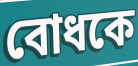
বোধকে